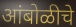
आंबोळीचे